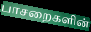
பாசறைகளின்